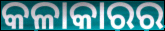
କଳାକାରର